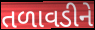
તળાવડીને